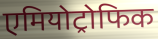
एमियोट्रोफिक